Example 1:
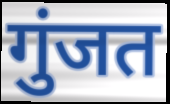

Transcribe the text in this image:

गुंजत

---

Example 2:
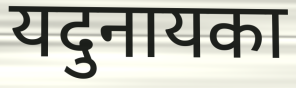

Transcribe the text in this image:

यदुनायका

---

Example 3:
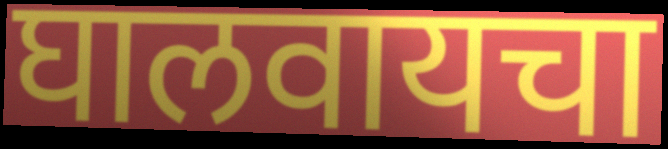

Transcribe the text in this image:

घालवायचा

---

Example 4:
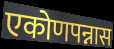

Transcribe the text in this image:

एकोणपन्नास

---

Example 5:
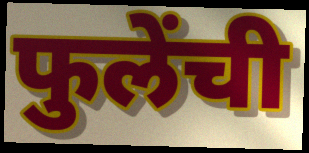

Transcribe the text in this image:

फुलेंची